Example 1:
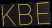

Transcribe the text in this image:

KBE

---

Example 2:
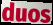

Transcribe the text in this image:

duos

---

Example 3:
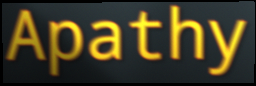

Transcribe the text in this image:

Apathy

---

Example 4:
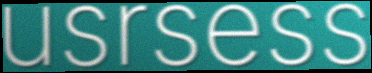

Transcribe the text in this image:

usrsess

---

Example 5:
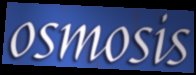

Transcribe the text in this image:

osmosis